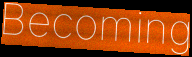
Becoming